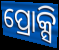
ପ୍ରୋକ୍ସି